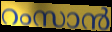
റംസാൻ